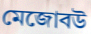
মেজোবউ